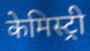
केमिस्ट्री